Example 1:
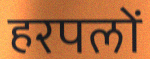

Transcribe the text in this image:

हरपलों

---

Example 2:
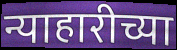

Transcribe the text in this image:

न्याहारीच्या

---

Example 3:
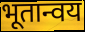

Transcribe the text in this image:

भूतान्वय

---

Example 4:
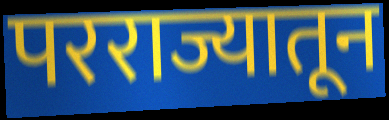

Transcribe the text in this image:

परराज्यातून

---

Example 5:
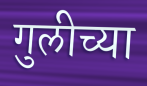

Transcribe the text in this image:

गुलीच्या